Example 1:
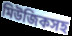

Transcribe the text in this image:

মিউজিকসহ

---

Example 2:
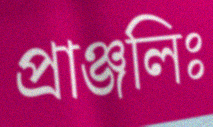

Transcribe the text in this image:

প্রাঞ্জলিঃ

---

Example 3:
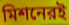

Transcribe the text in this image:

মিশনেরই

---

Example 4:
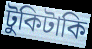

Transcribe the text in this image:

টুকিটাকি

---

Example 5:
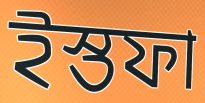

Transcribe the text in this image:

ইস্তফা